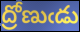
ద్రోణుఁడు